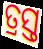
ତ୍ରସ୍ତ